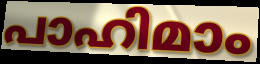
പാഹിമാം